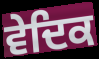
ਵੇਦਿਕ